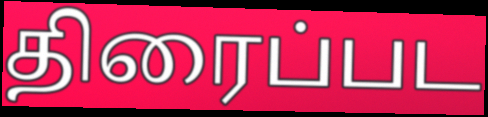
திரைப்பட